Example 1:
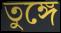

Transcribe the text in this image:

তুঙ্গে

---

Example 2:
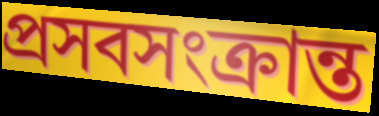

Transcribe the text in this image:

প্রসবসংক্রান্ত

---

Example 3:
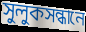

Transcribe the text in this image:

সুলুকসন্ধানে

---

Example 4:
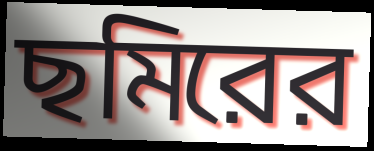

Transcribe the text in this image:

ছমিরের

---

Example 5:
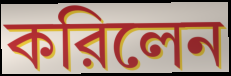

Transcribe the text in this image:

করিলেন